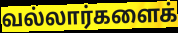
வல்லார்களைக்